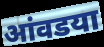
आंवडया